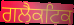
ਗਲੈਕਟਿਕ